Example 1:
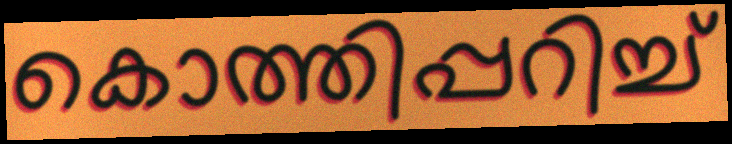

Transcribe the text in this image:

കൊത്തിപ്പറിച്ച്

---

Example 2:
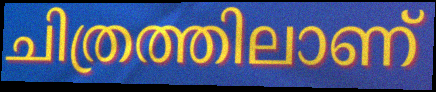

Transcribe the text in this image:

ചിത്രത്തിലാണ്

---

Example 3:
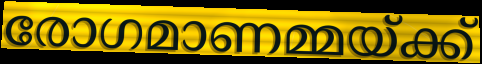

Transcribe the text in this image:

രോഗമാണമ്മയ്ക്ക്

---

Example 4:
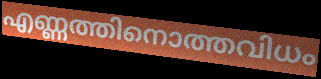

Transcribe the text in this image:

എണ്ണത്തിനൊത്തവിധം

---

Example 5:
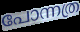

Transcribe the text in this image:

പോന്നത്ര